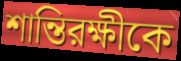
শান্তিরক্ষীকে